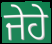
ਜੇਹੇ